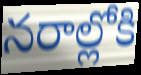
నరాల్లోకి